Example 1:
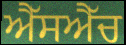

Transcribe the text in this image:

ਐੱਸਐੱਚ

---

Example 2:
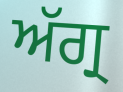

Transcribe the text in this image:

ਅੱਗ੍ਰ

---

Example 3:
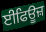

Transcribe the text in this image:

ਈਫਿਊਜ਼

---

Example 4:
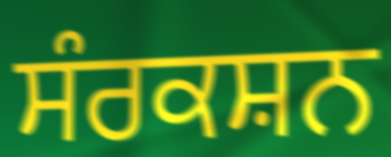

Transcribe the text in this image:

ਸੰਰਕਸ਼ਨ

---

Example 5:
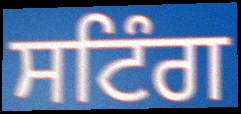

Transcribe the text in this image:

ਸਟਿੰਗ